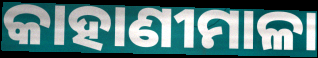
କାହାଣୀମାଳା